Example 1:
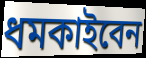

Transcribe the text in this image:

ধমকাইবেন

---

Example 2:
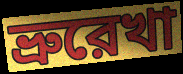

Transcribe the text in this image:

ভ্রুরেখা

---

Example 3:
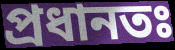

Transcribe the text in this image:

প্রধানতঃ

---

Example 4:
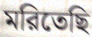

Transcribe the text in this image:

মরিতেছি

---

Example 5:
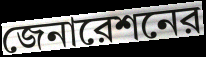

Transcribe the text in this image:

জেনারেশনের